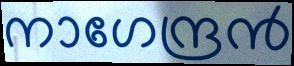
നാഗേന്ദ്രൻ